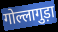
गोल्लागुड़ा